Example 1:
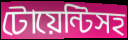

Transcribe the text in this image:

টোয়েন্টিসহ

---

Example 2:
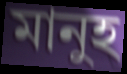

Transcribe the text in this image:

মানুহ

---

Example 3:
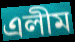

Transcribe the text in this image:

এলীম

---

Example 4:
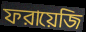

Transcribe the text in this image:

ফরায়েজি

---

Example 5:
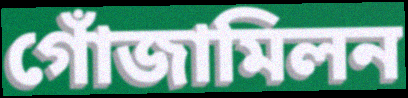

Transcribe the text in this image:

গোঁজামিলন